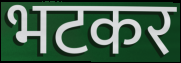
भटकर